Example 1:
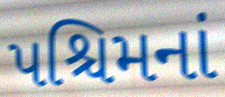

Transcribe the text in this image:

પશ્ચિમનાં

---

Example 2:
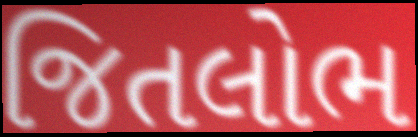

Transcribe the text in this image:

જિતલોભ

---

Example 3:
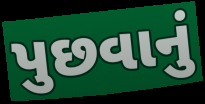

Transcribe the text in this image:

પુછવાનું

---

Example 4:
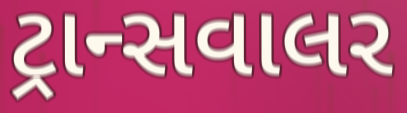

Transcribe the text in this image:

ટ્રાન્સવાલર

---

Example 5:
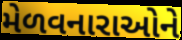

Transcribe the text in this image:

મેળવનારાઓને